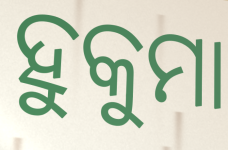
ହୁକୁମା